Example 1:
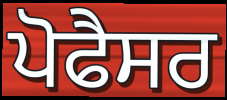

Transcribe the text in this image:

ਪੋਫੈਸਰ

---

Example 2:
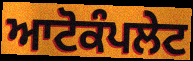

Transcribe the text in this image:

ਆਟੋਕੰਪਲੇਟ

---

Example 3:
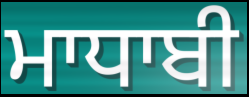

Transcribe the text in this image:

ਮਾਧਾਬੀ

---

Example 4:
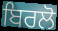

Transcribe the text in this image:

ਬਿਰਲੋ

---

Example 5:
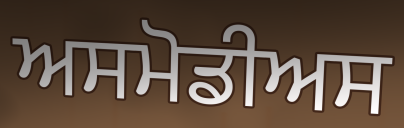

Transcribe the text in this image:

ਅਸਮੋਡੀਅਸ